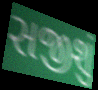
સજીશું